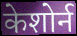
केशोर्न